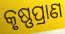
କୃଷ୍ଣପ୍ରାଣ